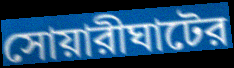
সোয়ারীঘাটের